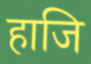
हाजि